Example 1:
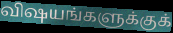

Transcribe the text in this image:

விஷயங்களுக்குக்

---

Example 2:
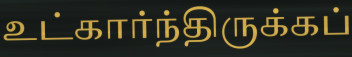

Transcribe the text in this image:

உட்கார்ந்திருக்கப்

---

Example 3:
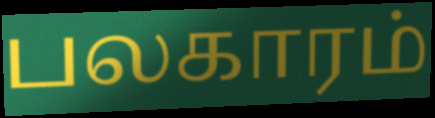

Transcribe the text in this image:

பலகாரம்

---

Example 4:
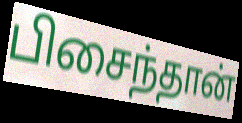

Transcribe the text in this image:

பிசைந்தான்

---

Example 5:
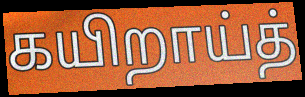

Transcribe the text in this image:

கயிறாய்த்